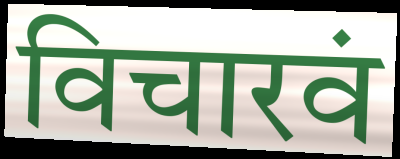
विचारवं